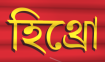
হিথ্রো